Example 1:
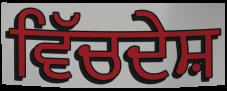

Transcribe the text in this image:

ਵਿੱਚਦੇਸ਼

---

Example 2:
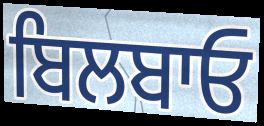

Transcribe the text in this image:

ਬਿਲਬਾਓ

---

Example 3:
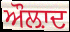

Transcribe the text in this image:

ਔਲ਼ਾਦ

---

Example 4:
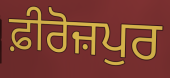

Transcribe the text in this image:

ਫ਼ੀਰੋਜ਼ਪੁਰ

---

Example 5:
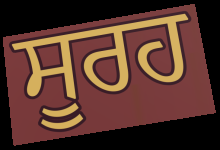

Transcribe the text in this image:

ਸੂਰਹ